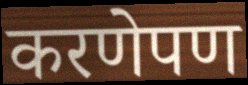
करणेपण